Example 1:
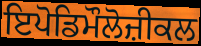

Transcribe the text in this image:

ਇਪੋਡਿਮੌਲੋਜ਼ੀਕਲ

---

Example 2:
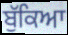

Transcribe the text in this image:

ਬੁੱਕਿਆ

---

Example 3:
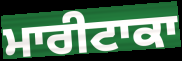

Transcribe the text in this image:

ਮਾਰੀਟਾਕਾ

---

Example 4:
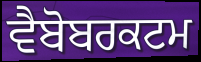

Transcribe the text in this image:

ਵੈਬੋਬਰਕਟਮ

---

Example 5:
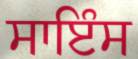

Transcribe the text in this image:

ਸਾਇੰਸ